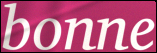
bonne